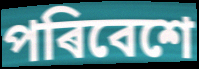
পৰিবেশে